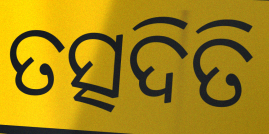
ତତ୍ସଦିତି